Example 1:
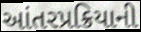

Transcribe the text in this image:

આંતરપ્રક્રિયાની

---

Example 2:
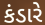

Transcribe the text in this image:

કંડારે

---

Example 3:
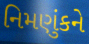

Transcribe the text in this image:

નિમણુંકને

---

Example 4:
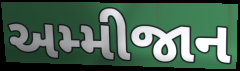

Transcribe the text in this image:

અમ્મીજાન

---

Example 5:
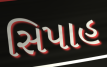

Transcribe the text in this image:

સિપાહ